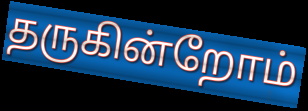
தருகின்றோம்